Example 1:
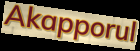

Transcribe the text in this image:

Akapporul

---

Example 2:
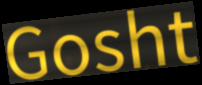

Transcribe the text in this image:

Gosht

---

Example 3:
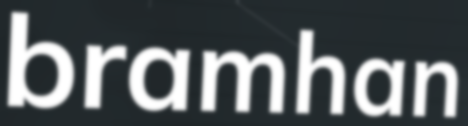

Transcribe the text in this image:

bramhan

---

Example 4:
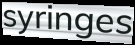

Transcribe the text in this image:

syringes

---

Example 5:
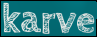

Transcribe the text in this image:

karve